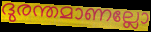
ദുരന്തമാണല്ലോ